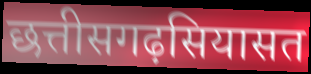
छत्तीसगढ़सियासत